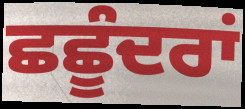
ਛਛੂੰਦਰਾਂ